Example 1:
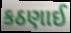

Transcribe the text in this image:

કઠણાઈ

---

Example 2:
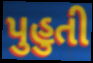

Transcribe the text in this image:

પુહુતી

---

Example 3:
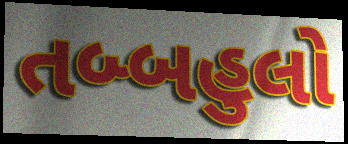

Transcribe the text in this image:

તબ્બહુલો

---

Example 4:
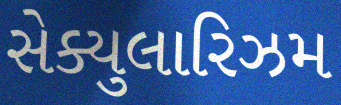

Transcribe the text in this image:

સેક્યુલારિઝમ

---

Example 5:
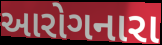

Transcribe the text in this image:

આરોગનારા